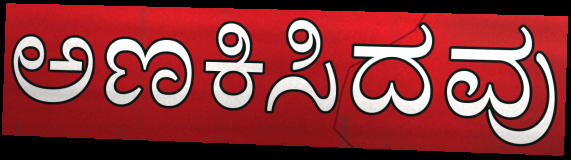
ಅಣಕಿಸಿದವು